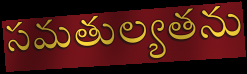
సమతుల్యతను